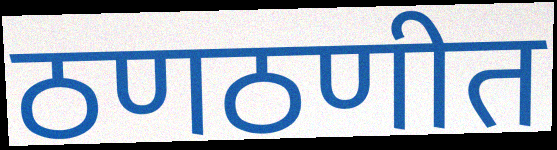
ठणठणीत